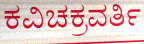
ಕವಿಚಕ್ರವರ್ತಿ